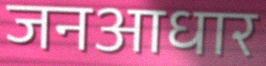
जनआधार